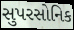
સુપરસોનિક